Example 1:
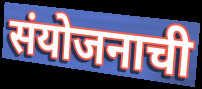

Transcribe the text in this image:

संयोजनाची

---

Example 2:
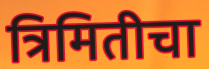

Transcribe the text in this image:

त्रिमितीचा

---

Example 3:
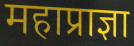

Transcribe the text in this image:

महाप्राज्ञा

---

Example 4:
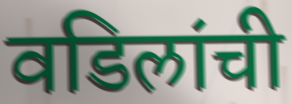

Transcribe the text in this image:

वडिलांची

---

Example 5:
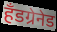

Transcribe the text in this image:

हॅंडग्रेनेड